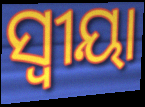
ସ୍ଵୀୟା